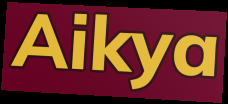
Aikya